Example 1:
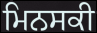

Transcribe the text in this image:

ਮਿਨਸਕੀ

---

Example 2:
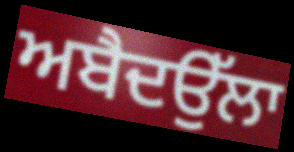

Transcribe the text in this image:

ਅਬੈਦਉੱਲਾ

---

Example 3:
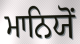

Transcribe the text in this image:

ਮਾਨਿਯੋਂ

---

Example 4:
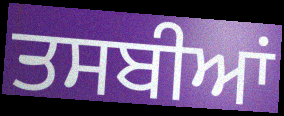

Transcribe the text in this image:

ਤਸਬੀਆਂ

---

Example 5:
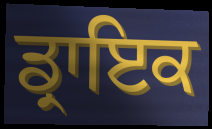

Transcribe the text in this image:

ਡ੍ਰਾਇਕ